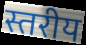
स्तरीय